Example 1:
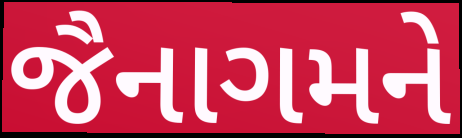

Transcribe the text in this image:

જૈનાગમને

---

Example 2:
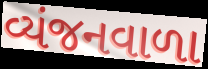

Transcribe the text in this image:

વ્યંજનવાળા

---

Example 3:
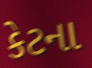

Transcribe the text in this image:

કેટના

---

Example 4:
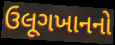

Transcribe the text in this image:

ઉલૂગખાનનો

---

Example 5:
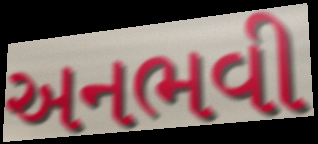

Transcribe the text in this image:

અનભવી